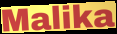
Malika